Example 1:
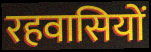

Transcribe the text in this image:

रहवासियों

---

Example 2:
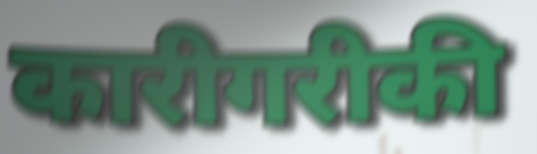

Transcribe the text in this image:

कारीगरीकी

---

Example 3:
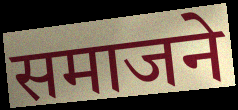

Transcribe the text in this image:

समाजने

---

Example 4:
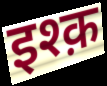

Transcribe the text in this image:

इश्क़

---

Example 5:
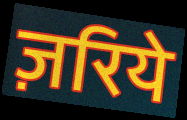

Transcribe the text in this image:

ज़रिये